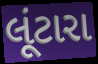
લૂંટારા